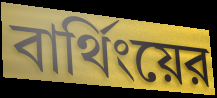
বার্থিংয়ের